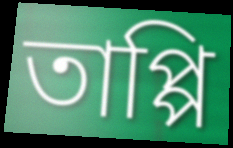
তাপ্পি